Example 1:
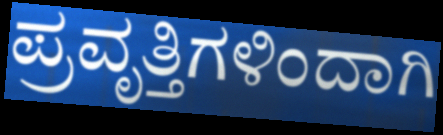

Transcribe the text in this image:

ಪ್ರವೃತ್ತಿಗಳಿಂದಾಗಿ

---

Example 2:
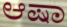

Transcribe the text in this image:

ಆಷಾ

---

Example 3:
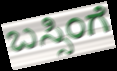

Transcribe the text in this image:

ಬಸ್ಸಿಂಗೆ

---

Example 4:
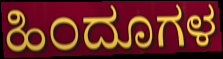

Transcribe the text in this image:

ಹಿಂದೂಗಳ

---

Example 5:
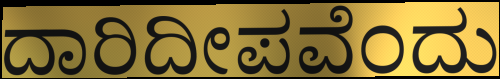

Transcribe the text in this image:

ದಾರಿದೀಪವೆಂದು